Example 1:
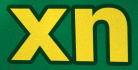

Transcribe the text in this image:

xn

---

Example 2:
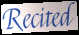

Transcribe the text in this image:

Recited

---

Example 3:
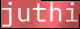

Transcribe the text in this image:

juthi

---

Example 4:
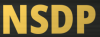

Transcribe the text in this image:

NSDP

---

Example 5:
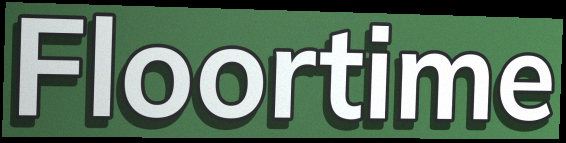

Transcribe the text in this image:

Floortime